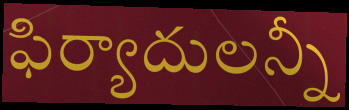
ఫిర్యాదులన్నీ